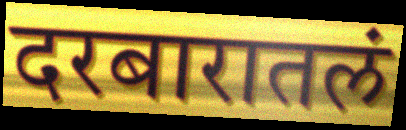
दरबारातलं